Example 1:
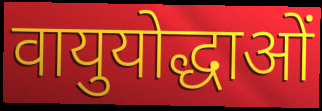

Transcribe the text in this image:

वायुयोद्धाओं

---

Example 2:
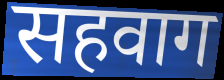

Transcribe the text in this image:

सहवाग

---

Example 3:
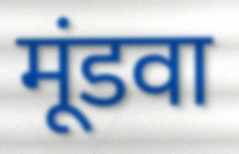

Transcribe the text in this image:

मूंडवा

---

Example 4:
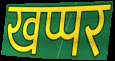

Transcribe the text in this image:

खप्पर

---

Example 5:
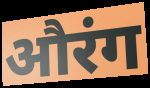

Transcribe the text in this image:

औरंग